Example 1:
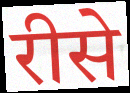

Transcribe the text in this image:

रीसे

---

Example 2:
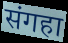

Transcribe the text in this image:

संगहा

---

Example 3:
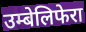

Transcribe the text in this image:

उम्बेलिफेरा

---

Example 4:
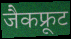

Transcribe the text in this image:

जैकफ्रूट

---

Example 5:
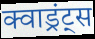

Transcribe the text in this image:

क्वाड्रंट्स